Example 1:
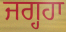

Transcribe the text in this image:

ਜਗ੍ਹਹਾ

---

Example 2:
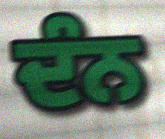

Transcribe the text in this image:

ਦੰਨ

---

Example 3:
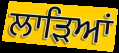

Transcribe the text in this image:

ਲਾੜਿਆਂ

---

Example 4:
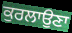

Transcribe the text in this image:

ਕੁਰਲਾਉਣਾ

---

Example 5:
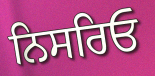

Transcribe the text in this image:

ਨਿਸਰਿਓ